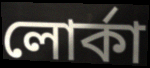
লোর্কা